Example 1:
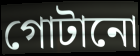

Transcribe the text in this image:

গোটানো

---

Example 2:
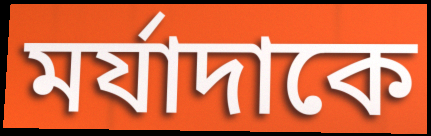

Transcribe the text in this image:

মর্যাদাকে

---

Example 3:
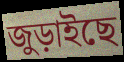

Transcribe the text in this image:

জুড়াইছে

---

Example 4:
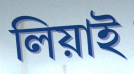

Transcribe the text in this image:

লিয়াই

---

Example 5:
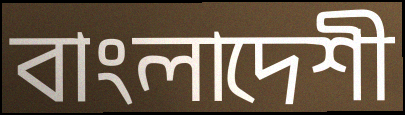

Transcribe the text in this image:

বাংলাদেশী